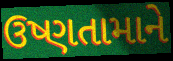
ઉષ્ણતામાને